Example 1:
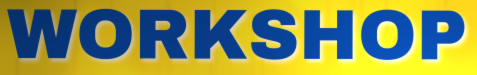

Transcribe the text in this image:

WORKSHOP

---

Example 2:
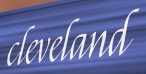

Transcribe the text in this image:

cleveland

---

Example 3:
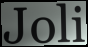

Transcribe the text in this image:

Joli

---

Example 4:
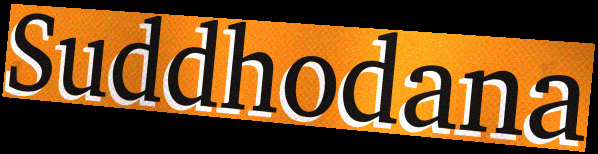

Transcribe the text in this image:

Suddhodana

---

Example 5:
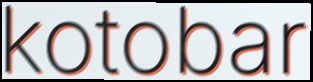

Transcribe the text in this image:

kotobar